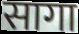
सागा